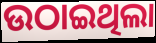
ଉଠାଇଥିଲା